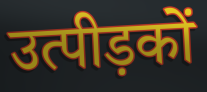
उत्पीड़कों